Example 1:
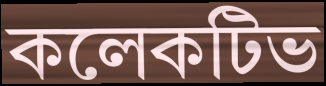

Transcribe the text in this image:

কলেকটিভ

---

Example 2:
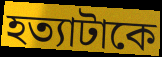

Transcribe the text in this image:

হত্যাটাকে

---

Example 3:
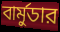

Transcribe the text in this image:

বার্মুডার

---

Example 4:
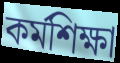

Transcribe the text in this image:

কর্মশিক্ষা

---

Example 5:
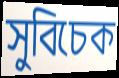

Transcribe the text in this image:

সুবিচেক